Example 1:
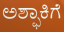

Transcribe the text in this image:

ಅಶ್ಫಾಕಿಗೆ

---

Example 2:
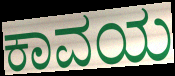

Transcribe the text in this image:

ಕಾವಯ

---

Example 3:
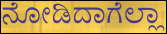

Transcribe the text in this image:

ನೋಡಿದಾಗೆಲ್ಲಾ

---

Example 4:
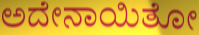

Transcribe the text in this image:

ಅದೇನಾಯಿತೋ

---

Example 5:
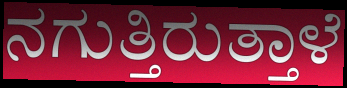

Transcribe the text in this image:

ನಗುತ್ತಿರುತ್ತಾಳೆ